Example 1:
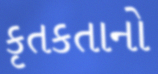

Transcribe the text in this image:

કૃતકતાનો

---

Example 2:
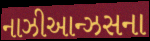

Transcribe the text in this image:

નાઝીઆન્ઝસના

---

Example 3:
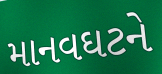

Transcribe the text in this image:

માનવઘટને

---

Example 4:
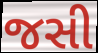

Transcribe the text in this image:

જસી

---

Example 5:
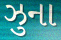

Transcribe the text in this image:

ઝુના